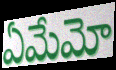
ఏమేమో